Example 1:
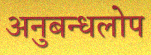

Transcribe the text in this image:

अनुबन्धलोप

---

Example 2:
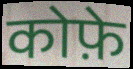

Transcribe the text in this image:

कोफ़े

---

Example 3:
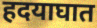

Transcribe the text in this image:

हदयाघात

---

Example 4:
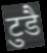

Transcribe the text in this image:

टुडै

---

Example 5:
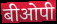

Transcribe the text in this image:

बीओपी